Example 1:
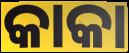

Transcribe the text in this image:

କାକା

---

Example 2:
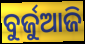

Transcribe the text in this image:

ବୁର୍ଜୁଆଜି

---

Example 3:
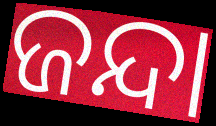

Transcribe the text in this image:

ଜନ୍ଦା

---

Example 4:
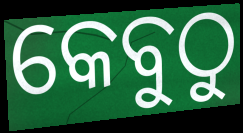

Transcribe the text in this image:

କେବୁଠୁ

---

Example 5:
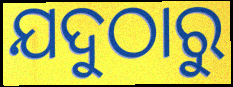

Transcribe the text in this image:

ଯଦୁଠାରୁ